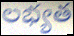
లభ్యత